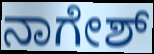
ನಾಗೇಶ್